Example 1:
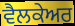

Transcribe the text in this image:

ਵੈਲਕੇਅਰ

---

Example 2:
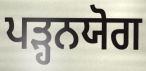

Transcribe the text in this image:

ਪੜ੍ਹਨਯੋਗ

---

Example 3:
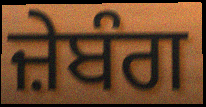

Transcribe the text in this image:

ਜ਼ੇਬੰਗ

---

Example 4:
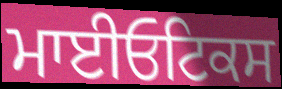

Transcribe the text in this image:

ਮਾਈਓਟਿਕਸ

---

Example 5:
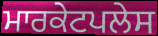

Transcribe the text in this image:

ਮਾਰਕੇਟਪਲੇਸ